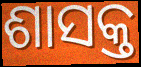
ଶାସକ୍ତ